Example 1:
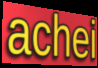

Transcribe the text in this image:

achei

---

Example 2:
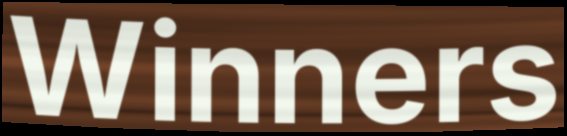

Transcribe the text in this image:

Winners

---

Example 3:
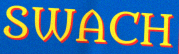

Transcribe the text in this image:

SWACH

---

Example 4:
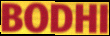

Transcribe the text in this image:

BODHI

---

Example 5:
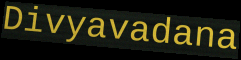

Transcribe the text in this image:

Divyavadana